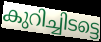
കുറിച്ചിടട്ടെ